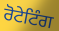
ਰੋਟੇਟਿੰਗ